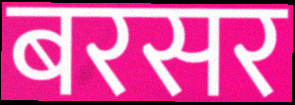
बरसर